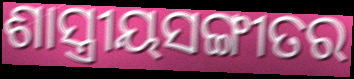
ଶାସ୍ତ୍ରୀୟସଙ୍ଗୀତର